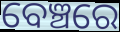
ବେଞ୍ଚରେ